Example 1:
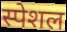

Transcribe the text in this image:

स्पेशल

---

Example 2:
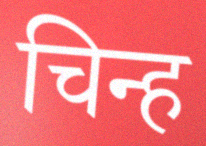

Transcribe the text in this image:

चिन्ह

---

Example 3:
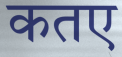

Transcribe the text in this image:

कतए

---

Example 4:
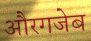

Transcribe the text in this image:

औरगजेब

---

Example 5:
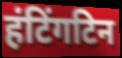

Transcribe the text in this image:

हंटिंगटिन